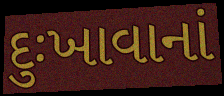
દુઃખાવાનાં